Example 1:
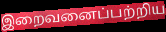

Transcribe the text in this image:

இறைவனைப்பற்றிய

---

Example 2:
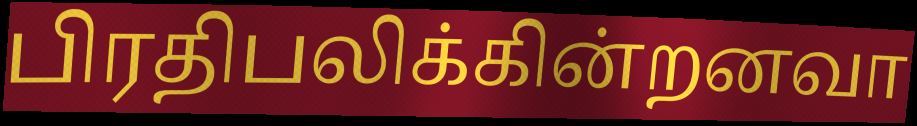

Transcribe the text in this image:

பிரதிபலிக்கின்றனவா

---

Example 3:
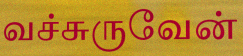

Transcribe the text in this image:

வச்சுருவேன்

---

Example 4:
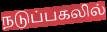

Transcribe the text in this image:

நடுப்பகலில்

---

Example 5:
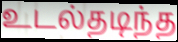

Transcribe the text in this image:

உடல்தடிந்த